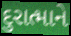
દુરાત્માને